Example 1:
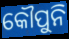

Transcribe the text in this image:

କୌପୁନି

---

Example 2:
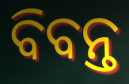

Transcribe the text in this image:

ବିବନ୍ତ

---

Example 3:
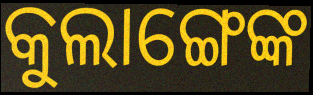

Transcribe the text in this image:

କୁଲାଙ୍ଗେଙ୍କ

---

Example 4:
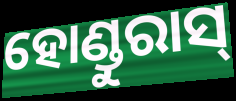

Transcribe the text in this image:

ହୋଣ୍ଡୁରାସ୍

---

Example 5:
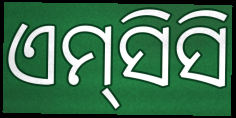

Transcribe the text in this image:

ଏମ୍‌ସିସି